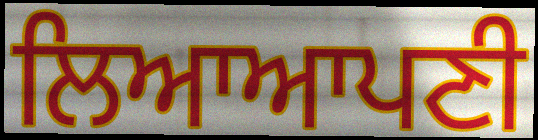
ਲਿਆਆਪਣੀ